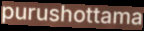
purushottama